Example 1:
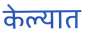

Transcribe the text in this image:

केल्यात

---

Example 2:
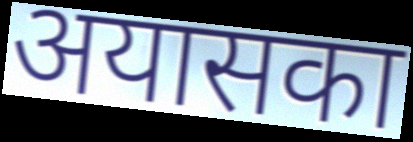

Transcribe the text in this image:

अयासका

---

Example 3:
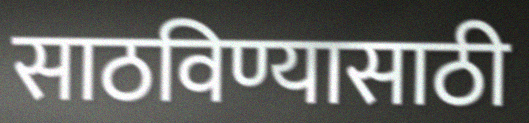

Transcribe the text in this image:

साठविण्यासाठी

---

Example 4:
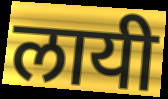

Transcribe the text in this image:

लायी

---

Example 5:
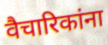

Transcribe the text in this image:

वैचारिकांना